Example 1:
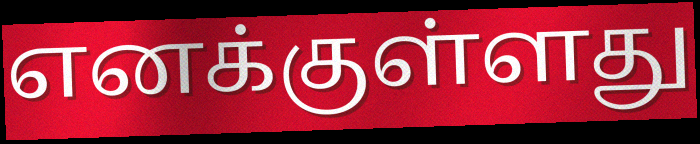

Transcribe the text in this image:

எனக்குள்ளது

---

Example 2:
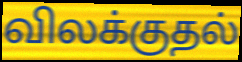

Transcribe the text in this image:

விலக்குதல்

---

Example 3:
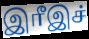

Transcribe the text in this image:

இரீஇச்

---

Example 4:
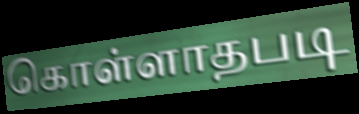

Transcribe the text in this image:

கொள்ளாதபடி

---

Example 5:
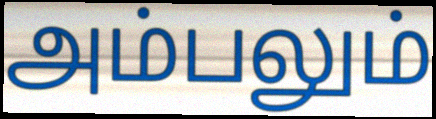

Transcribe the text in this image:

அம்பலும்